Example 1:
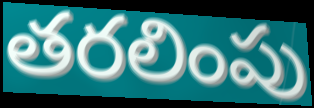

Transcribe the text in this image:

తరలింపు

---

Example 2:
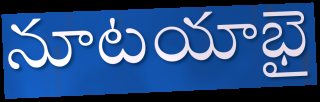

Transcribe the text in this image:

నూటయాభై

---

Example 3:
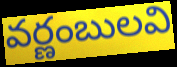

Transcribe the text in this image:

వర్ణంబులవి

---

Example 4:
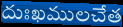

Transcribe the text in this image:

దుఃఖములచేత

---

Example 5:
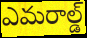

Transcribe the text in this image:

ఎమరాల్డ్